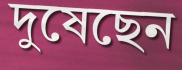
দুষেছেন